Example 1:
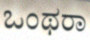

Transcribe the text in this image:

ಒಂಥರಾ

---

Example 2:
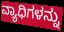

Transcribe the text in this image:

ವ್ಯಾಧಿಗಳನ್ನು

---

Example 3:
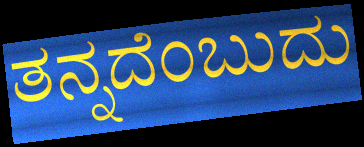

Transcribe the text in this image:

ತನ್ನದೆಂಬುದು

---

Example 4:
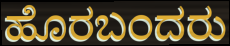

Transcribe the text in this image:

ಹೊರಬಂದರು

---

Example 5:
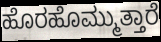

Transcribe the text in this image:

ಹೊರಹೊಮ್ಮುತ್ತಾರೆ